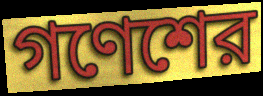
গণেশের